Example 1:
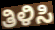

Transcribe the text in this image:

ತಿಳಿಸಿ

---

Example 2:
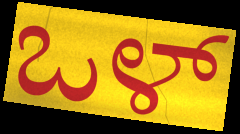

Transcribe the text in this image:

ಒಳ್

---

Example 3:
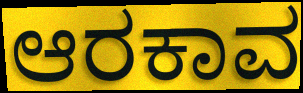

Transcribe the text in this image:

ಆರಕಾವ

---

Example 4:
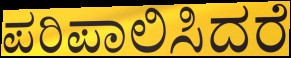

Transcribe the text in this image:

ಪರಿಪಾಲಿಸಿದರೆ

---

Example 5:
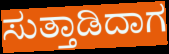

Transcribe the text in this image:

ಸುತ್ತಾಡಿದಾಗ